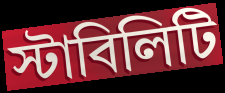
স্টাবিলিটি